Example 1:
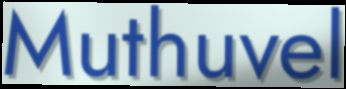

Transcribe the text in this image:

Muthuvel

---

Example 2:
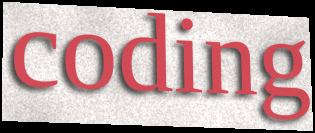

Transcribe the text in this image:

coding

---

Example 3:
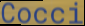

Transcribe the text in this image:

Cocci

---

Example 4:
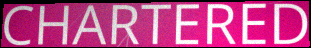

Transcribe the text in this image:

CHARTERED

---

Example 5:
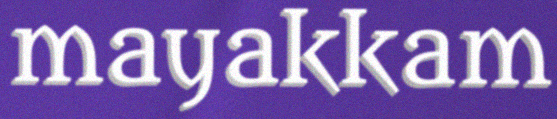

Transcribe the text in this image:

mayakkam